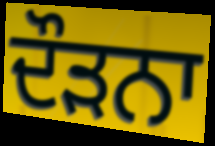
ਦੌੜਨਾ